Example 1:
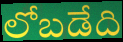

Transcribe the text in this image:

లోబడేది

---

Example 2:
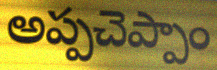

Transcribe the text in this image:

అప్పచెప్పాం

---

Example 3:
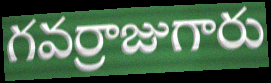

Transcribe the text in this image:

గవర్రాజుగారు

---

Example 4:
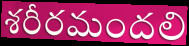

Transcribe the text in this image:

శరీరమందలి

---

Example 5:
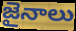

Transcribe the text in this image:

జైనాలు